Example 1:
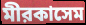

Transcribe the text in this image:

মীরকাসেম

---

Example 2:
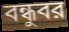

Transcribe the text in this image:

বন্ধুবর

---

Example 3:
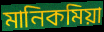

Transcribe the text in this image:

মানিকমিয়া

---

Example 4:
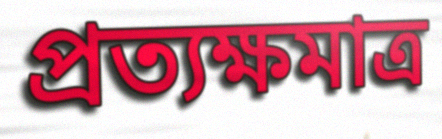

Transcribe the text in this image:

প্রত্যক্ষমাত্র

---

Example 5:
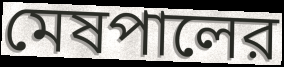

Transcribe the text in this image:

মেষপালের